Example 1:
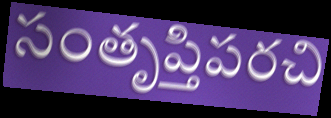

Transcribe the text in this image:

సంతృప్తిపరచి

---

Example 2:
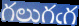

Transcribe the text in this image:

గలుగఁగ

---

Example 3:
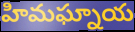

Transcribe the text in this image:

హిమఘ్నాయ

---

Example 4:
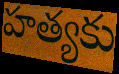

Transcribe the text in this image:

హత్యకు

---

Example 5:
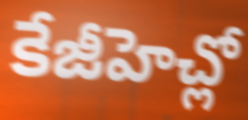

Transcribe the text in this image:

కేజీహెచ్లో